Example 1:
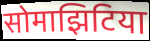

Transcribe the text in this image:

सोमाझिटिया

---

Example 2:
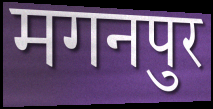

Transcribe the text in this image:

मगनपुर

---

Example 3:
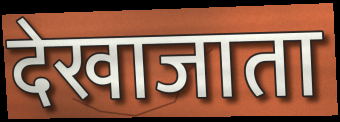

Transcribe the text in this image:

देखाजाता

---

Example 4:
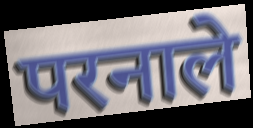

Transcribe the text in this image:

परनाले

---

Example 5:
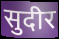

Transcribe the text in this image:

सुदीर